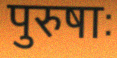
पुरुषाः